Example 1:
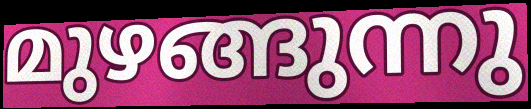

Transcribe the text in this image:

മുഴങ്ങുന്നു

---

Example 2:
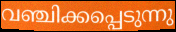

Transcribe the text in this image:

വഞ്ചിക്കപ്പെടുന്നു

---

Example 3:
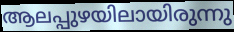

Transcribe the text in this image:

ആലപ്പുഴയിലായിരുന്നു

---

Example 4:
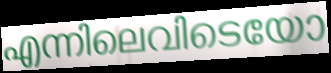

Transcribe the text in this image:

എന്നിലെവിടെയോ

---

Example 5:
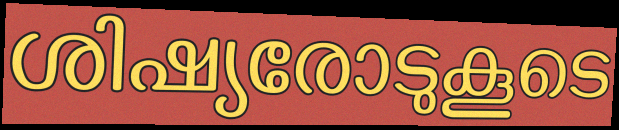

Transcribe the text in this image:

ശിഷ്യരോടുകൂടെ